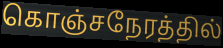
கொஞ்சநேரத்தில்